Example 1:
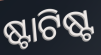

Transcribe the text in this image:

ଷ୍ଟାଟିଷ୍ଟ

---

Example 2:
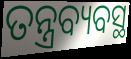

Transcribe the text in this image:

ତନ୍ତ୍ରବ୍ୟବସ୍ଥ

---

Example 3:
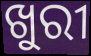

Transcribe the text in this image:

ଖୁରୀ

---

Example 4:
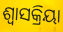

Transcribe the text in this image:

ଶ୍ବାସକ୍ରିୟା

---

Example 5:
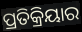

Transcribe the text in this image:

ପ୍ରତିକ୍ରିୟାର